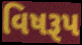
વિષરૂપ